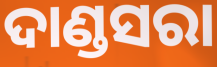
ଦାଣ୍ଡସରା